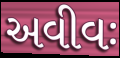
અવીવઃ